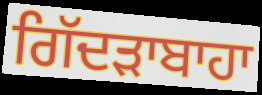
ਗਿੱਦੜਾਬਾਹਾ